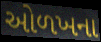
ઓળખના